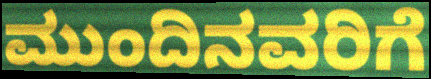
ಮುಂದಿನವರಿಗೆ